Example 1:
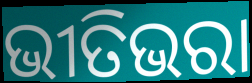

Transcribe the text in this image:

ଭୀତିଭରା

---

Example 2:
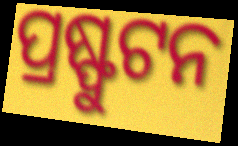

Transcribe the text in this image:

ପ୍ରଷ୍ଫୁଟନ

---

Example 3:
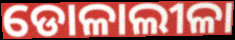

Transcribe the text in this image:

ଡୋଳାଲୀଳା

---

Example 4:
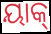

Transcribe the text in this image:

ୟାକ୍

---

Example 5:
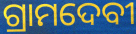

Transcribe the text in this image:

ଗ୍ରାମଦେବୀ